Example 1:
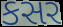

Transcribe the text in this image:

કસર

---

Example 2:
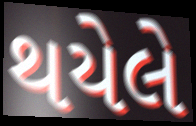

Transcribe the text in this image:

થયેલે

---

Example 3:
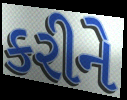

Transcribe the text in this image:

કરીને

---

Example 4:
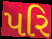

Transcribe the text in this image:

પરિ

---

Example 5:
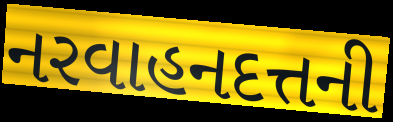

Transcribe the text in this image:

નરવાહનદત્તની